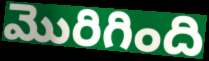
మొరిగింది